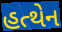
હત્થેન